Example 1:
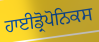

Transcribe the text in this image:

ਹਾਈਡ੍ਰੋਪੋਨਿਕਸ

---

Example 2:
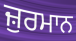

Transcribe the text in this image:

ਜ਼ੁਰਮਾਨ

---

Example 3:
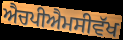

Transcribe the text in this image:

ਐਚਪੀਐਮਸੀਵੱਖ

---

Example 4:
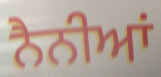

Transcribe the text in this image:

ਨੈਨੀਆਂ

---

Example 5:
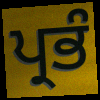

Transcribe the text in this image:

ਪ੍ਰਭੰ